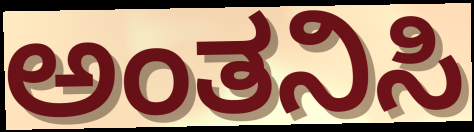
ಅಂತನಿಸಿ